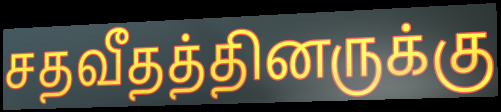
சதவீதத்தினருக்கு